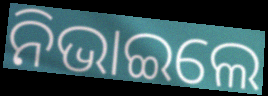
ନିଭାଇଲେ